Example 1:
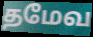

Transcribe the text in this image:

தமேவ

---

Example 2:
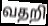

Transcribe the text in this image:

வதறி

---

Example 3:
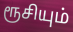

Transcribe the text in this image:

ரூசியும்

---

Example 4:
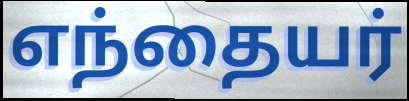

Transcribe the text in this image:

எந்தையர்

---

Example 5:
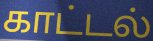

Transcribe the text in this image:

காட்டல்